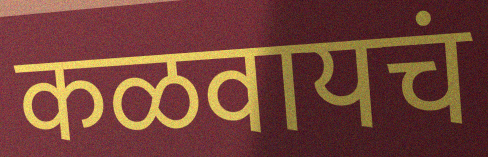
कळवायचं